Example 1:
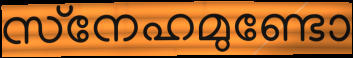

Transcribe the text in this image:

സ്‌നേഹമുണ്ടോ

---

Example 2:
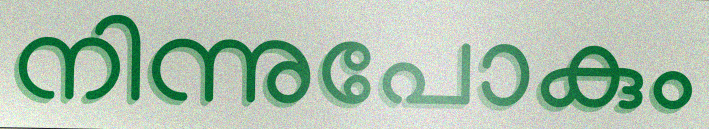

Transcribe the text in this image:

നിന്നുപോകും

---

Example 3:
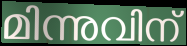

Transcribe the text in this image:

മിന്നുവിന്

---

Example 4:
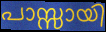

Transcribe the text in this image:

പാസ്സായി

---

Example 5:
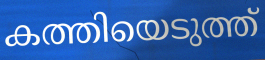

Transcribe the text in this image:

കത്തിയെടുത്ത്